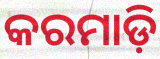
କରମାଡ଼ି